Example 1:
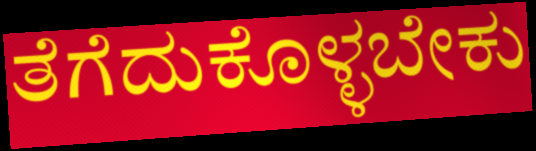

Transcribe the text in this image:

ತೆಗೆದುಕೊಳ್ಳಬೇಕು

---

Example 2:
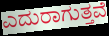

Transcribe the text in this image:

ಎದುರಾಗುತ್ತವೆ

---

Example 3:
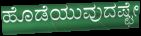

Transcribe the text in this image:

ಹೊಡೆಯುವುದಷ್ಟೇ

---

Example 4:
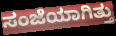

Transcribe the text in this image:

ಸಂಜೆಯಾಗಿತ್ತು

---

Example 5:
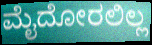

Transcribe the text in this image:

ಮೈದೋರಲಿಲ್ಲ